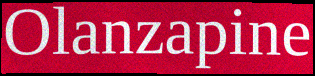
Olanzapine